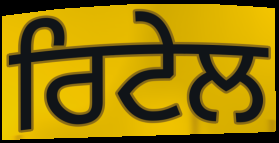
ਰਿਟੇਲ